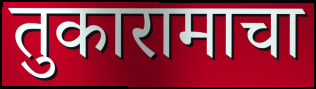
तुकारामाचा